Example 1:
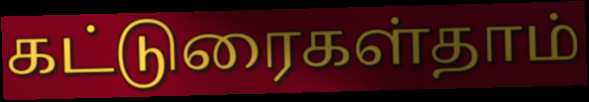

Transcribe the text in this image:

கட்டுரைகள்தாம்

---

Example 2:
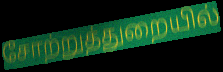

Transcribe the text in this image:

சோற்றுத்துறையில்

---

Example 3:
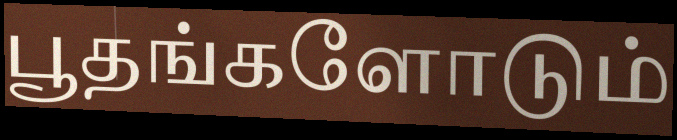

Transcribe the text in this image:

பூதங்களோடும்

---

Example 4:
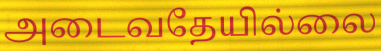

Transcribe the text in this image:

அடைவதேயில்லை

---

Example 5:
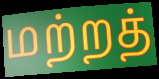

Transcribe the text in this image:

மற்றத்